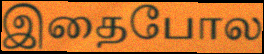
இதைபோல